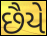
છૈયે